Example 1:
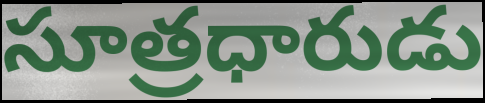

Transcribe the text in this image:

సూత్రధారుడు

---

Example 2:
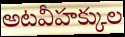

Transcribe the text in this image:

అటవీహక్కుల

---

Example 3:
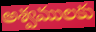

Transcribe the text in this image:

అశ్వములకు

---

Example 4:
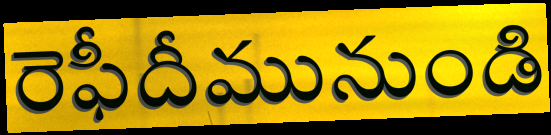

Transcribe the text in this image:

రెఫీదీమునుండి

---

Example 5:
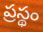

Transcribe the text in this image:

ప్రస్థం